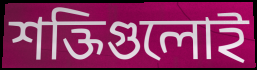
শক্তিগুলোই